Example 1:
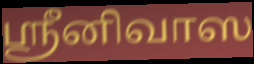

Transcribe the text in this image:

ஸ்ரீனிவாஸ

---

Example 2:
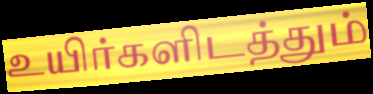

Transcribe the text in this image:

உயிர்களிடத்தும்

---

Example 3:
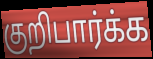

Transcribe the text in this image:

குறிபார்க்க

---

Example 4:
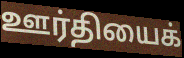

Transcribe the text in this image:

ஊர்தியைக்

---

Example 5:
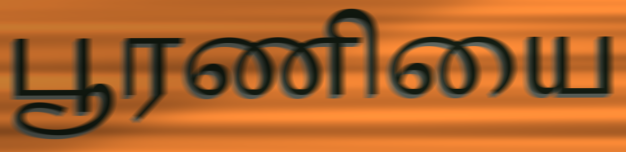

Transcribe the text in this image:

பூரணியை